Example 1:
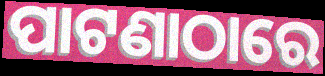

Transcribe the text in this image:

ପାଟଣାଠାରେ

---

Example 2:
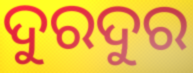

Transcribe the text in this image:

ଦୁରଦୁର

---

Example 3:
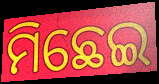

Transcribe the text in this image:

ମିଛେଇ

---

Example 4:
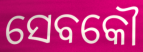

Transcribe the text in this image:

ସେବକୌ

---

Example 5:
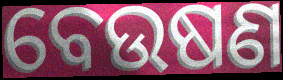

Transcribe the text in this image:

ବେଉଷଣ